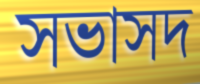
সভাসদ